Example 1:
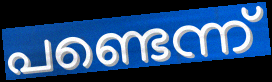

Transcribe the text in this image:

പണ്ടെന്ന്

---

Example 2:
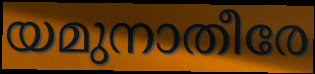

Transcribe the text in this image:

യമുനാതീരേ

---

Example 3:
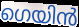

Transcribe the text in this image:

ഗെയിൻ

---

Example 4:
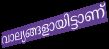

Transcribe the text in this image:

വാല്യങ്ങളായിട്ടാണ്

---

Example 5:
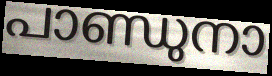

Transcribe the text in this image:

പാണ്ഡുനാ